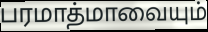
பரமாத்மாவையும்